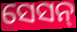
ସେସନ୍